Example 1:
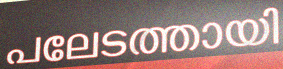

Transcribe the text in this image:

പലേടത്തായി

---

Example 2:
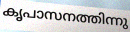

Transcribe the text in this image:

കൃപാസനത്തിന്നു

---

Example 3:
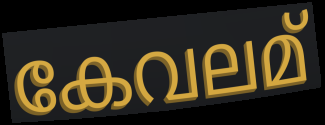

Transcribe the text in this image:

കേവലമ്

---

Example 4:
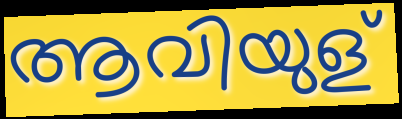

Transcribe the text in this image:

ആവിയുള്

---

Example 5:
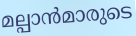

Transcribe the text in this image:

മല്പാൻമാരുടെ